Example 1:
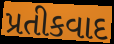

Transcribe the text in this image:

પ્રતીકવાદ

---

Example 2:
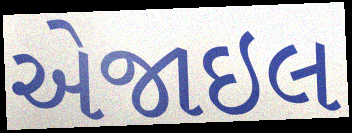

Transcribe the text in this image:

એજાઇલ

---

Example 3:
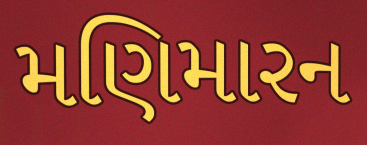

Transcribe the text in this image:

મણિમારન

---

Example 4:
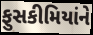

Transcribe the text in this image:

ફુસકીમિયાંને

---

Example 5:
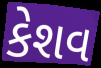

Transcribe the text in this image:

કેશવ